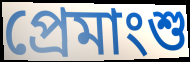
প্রেমাংশু